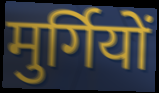
मुर्गियों